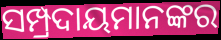
ସମ୍ପ୍ରଦାୟମାନଙ୍କର